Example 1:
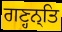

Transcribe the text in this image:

ਗਣ੍ਹਨ੍ਤਿ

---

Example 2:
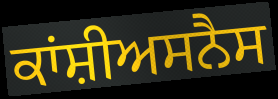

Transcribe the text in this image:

ਕਾਂਸ਼ੀਅਸਨੈਸ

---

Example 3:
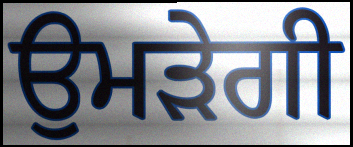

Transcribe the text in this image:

ਉਮੜੇਗੀ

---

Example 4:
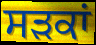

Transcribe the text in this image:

ਸੜਕਾਂ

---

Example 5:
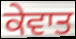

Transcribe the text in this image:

ਕੇਵਾਤ